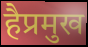
हैप्रमुख